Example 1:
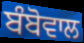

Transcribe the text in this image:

ਬੰਬੋਵਾਲ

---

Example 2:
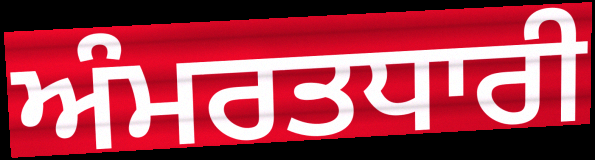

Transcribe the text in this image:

ਅੰਮਰਤਧਾਰੀ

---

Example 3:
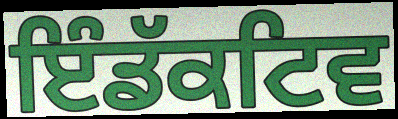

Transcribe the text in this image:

ਇੰਡੱਕਟਿਵ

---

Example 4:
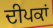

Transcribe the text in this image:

ਦੀਪਕਾਂ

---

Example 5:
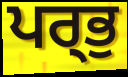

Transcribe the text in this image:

ਪਰ੍ਭੁ